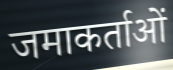
जमाकर्ताओं